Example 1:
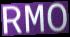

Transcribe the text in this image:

RMO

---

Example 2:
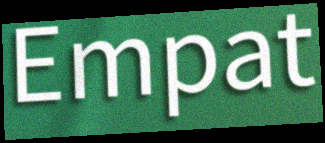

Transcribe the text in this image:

Empat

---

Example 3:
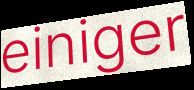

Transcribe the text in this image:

einiger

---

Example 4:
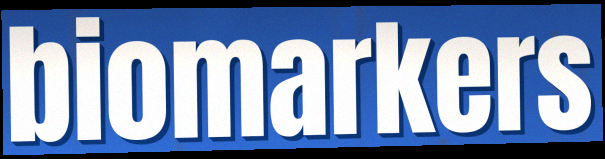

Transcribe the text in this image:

biomarkers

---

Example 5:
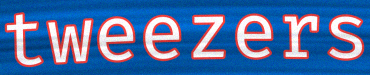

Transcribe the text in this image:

tweezers